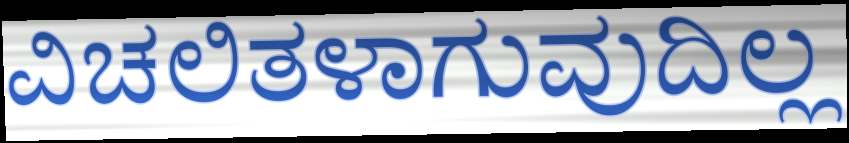
ವಿಚಲಿತಳಾಗುವುದಿಲ್ಲ